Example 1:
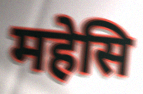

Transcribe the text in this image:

महेसि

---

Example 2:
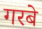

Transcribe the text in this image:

गरबे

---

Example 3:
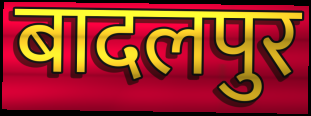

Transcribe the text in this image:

बादलपुर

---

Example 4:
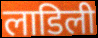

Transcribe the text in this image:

लाडिली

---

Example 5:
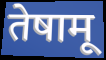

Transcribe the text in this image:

तेषामू